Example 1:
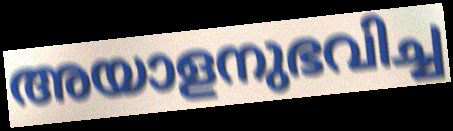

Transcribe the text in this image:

അയാളനുഭവിച്ച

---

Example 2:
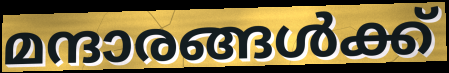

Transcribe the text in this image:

മന്ദാരങ്ങൾക്ക്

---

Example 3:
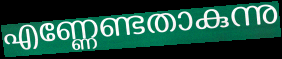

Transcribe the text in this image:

എണ്ണേണ്ടതാകുന്നു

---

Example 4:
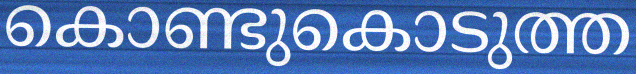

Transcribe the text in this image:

കൊണ്ടുകൊടുത്ത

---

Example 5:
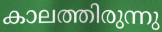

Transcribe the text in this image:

കാലത്തിരുന്നു